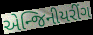
એન્જિનીયરીંગ